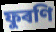
ফুৰণি